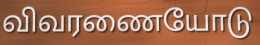
விவரணையோடு